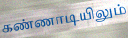
கண்ணாடியிலும்